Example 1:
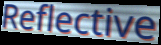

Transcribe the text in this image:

Reflective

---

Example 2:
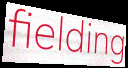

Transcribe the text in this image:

fielding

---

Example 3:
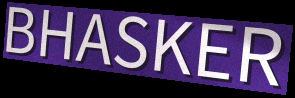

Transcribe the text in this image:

BHASKER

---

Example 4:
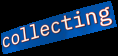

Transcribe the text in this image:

collecting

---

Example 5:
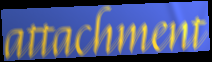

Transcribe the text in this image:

attachment